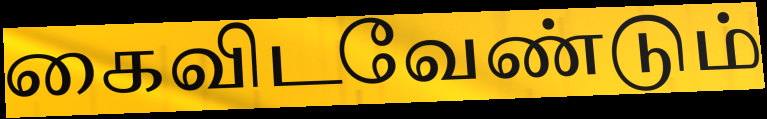
கைவிடவேண்டும்